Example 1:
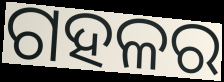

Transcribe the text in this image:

ଗହଳର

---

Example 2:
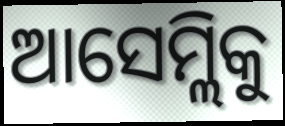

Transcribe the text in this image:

ଆସେମ୍ଲିକୁ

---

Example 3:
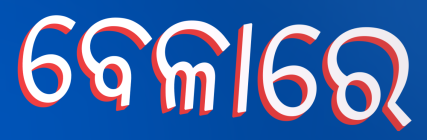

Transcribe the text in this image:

ବେଳାରେ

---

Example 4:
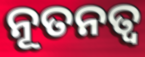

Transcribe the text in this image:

ନୂତନତ୍ୱ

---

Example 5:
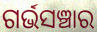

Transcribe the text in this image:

ଗର୍ଭସଞ୍ଚାର